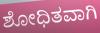
ಶೋಧಿತವಾಗಿ